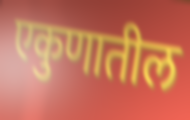
एकुणातील